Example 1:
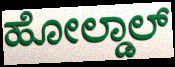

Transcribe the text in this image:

ಹೋಲ್ಡಾಲ್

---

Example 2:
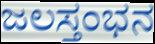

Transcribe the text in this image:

ಜಲಸ್ತಂಭನ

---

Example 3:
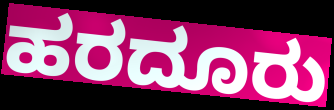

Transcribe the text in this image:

ಹರದೂರು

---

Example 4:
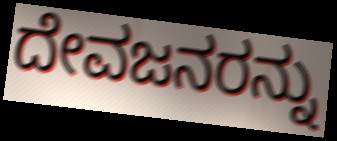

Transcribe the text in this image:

ದೇವಜನರನ್ನು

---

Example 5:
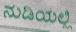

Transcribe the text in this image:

ನುಡಿಯಲ್ಲಿ